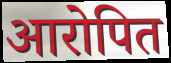
आरोपित